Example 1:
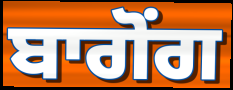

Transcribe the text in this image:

ਬਾਗੋਂਗ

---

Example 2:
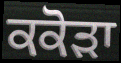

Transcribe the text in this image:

ਕਕੋੜਾ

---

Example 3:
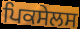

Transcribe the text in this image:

ਪਿਕਸੇਲਸ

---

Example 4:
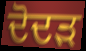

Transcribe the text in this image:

ਦੋਦੜ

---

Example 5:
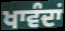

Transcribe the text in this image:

ਖਾਵੰਦਾਂ